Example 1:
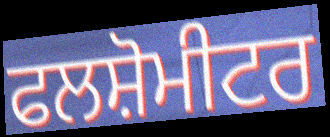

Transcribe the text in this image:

ਫਲਸ਼ੋਮੀਟਰ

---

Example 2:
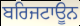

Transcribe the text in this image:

ਬਰਿਜਟਾਊਨ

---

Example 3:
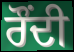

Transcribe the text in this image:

ਰੌਂਦੀ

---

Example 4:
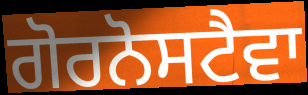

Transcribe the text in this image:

ਗੋਰਨੋਸਟੈਵਾ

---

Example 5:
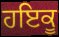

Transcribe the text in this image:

ਹਇਕੂ